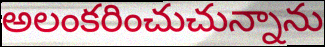
అలంకరించుచున్నాను